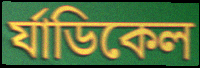
র্যাডিকেল